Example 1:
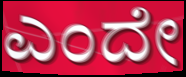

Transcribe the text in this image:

ಎಂದೇ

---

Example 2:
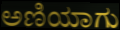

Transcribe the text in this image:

ಅಣಿಯಾಗು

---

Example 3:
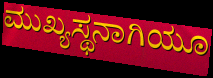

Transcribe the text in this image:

ಮುಖ್ಯಸ್ಥನಾಗಿಯೂ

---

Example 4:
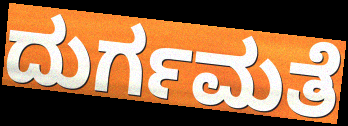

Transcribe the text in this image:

ದುರ್ಗಮತೆ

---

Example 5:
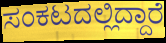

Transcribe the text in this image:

ಸಂಕಟದಲ್ಲಿದ್ದಾರೆ